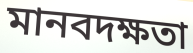
মানবদক্ষতা